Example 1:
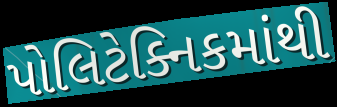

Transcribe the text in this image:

પોલિટેક્નિકમાંથી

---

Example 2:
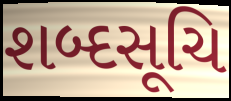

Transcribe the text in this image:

શબ્દસૂચિ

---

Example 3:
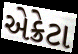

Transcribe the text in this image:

એક્રેટા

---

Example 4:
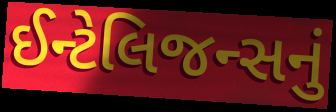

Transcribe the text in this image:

ઈન્ટેલિજન્સનું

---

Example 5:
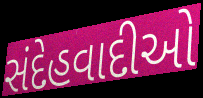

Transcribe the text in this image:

સંદેહવાદીઓ